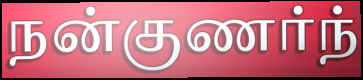
நன்குணர்ந்